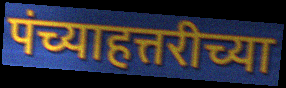
पंच्याहत्तरीच्या